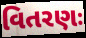
વિતરણઃ